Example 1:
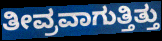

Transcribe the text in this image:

ತೀವ್ರವಾಗುತ್ತಿತ್ತು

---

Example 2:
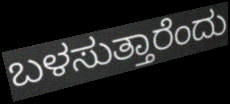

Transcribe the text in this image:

ಬಳಸುತ್ತಾರೆಂದು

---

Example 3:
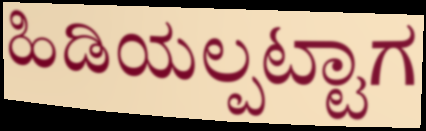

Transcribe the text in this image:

ಹಿಡಿಯಲ್ಪಟ್ಟಾಗ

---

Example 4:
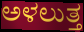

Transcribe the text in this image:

ಅಳಲುತ್ತ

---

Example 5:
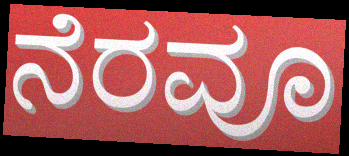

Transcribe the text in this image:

ನೆರವೂ